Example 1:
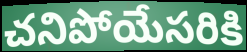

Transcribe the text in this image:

చనిపోయేసరికి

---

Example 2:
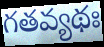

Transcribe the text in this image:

గతవ్యథః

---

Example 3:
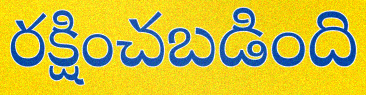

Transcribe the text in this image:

రక్షించబడింది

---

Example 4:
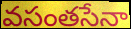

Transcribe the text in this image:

వసంతసేనా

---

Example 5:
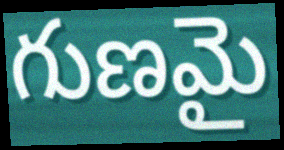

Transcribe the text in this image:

గుణమై